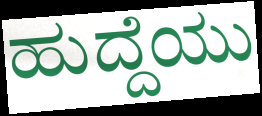
ಹುದ್ದೆಯು